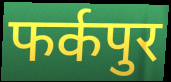
फर्कपुर